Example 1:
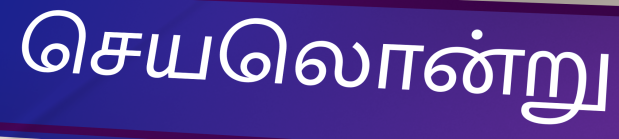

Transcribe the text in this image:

செயலொன்று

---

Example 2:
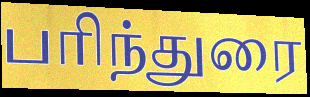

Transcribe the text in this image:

பரிந்துரை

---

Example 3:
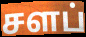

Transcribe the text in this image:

சளப்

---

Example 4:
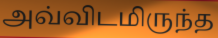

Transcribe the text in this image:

அவ்விடமிருந்த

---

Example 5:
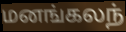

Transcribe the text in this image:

மனங்கலந்